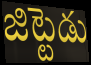
జిట్టెడు